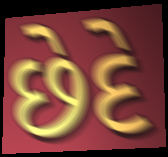
છેદે